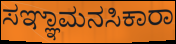
ಸಞ್ಞಾಮನಸಿಕಾರಾ